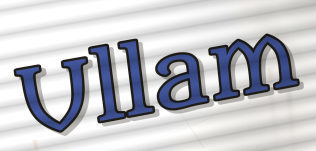
Ullam